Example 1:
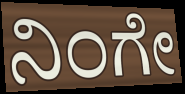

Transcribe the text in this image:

ನಿಂಗೇ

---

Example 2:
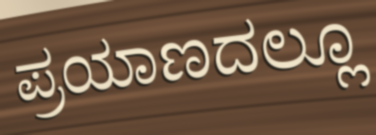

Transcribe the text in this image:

ಪ್ರಯಾಣದಲ್ಲೂ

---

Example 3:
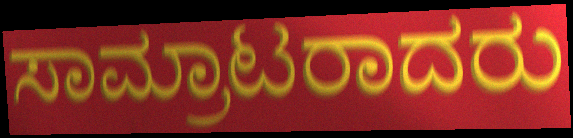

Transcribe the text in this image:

ಸಾಮ್ರಾಟರಾದರು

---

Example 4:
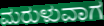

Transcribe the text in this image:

ಮರುಳುವಾಗ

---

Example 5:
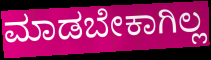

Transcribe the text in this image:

ಮಾಡಬೇಕಾಗಿಲ್ಲ